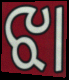
ଝା